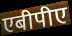
एबीपीए